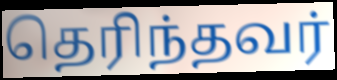
தெரிந்தவர்